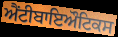
ਐਂਟੀਬਾਇਔਟਿਕਸ